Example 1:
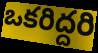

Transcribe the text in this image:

ఒకరిద్దరి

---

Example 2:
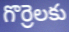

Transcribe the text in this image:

గొర్రెలకు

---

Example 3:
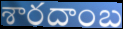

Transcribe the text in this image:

శారదాంబ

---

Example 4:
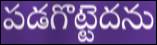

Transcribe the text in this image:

పడగొట్టెదను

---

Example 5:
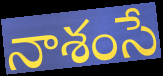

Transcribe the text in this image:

నాశంసే